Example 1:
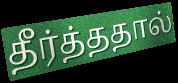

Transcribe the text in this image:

தீர்த்ததால்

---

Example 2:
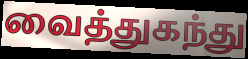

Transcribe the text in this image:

வைத்துகந்து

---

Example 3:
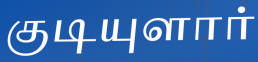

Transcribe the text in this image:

குடியுளார்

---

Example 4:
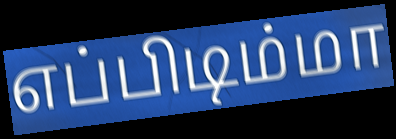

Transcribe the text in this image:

எப்பிடிம்மா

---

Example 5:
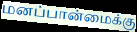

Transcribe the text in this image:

மனப்பான்மைக்கு